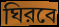
ঘিরবে